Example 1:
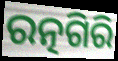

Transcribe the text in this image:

ରତ୍ନଗିରି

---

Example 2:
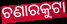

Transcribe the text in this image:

ଚଣାରକୁଟା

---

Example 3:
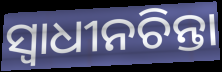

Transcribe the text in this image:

ସ୍ଵାଧୀନଚିନ୍ତା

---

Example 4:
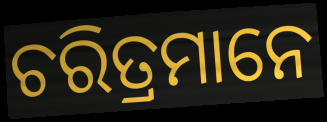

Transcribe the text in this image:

ଚରିତ୍ରମାନେ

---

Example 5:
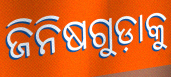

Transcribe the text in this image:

ଜିନିଷଗୁଡ଼ାକୁ